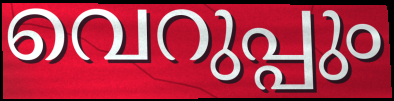
വെറുപ്പും